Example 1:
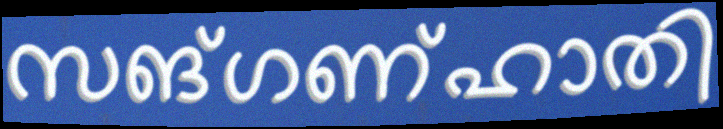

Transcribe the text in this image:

സങ്ഗണ്ഹാതി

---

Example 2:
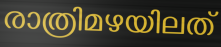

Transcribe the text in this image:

രാത്രിമഴയിലത്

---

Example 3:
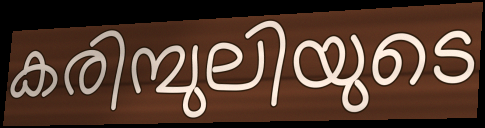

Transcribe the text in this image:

കരിമ്പുലിയുടെ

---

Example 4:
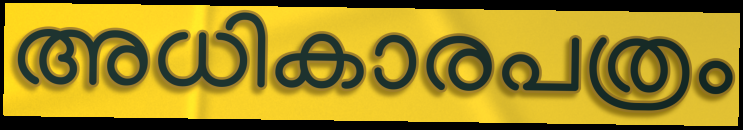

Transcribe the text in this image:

അധികാരപത്രം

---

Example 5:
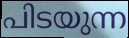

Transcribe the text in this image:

പിടയുന്ന